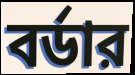
বর্ডার